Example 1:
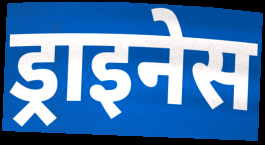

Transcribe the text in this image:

ड्राइनेस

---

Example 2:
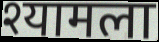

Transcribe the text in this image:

श्यामला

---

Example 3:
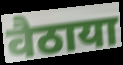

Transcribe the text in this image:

वैठाया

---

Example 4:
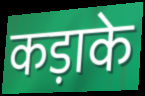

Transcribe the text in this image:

कड़ाके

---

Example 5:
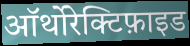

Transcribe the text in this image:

ऑर्थोरेक्टिफ़ाइड